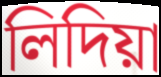
লিদিয়া